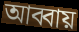
আব্বায়